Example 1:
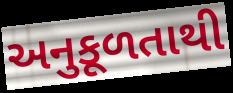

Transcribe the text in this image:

અનુકૂળતાથી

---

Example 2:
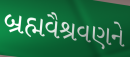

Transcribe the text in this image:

બ્રહ્મવૈશ્રવણને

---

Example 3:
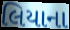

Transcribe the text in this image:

લિયાના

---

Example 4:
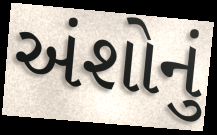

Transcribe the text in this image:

અંશોનું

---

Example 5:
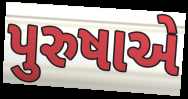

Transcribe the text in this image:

પુરુષાએ